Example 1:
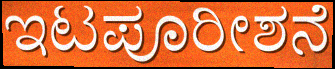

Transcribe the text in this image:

ಇಟಪೂರೀಶನೆ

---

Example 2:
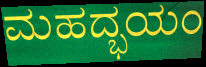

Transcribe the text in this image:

ಮಹದ್ಭಯಂ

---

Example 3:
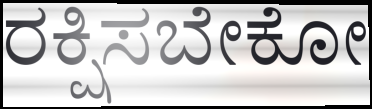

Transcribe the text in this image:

ರಕ್ಷಿಸಬೇಕೋ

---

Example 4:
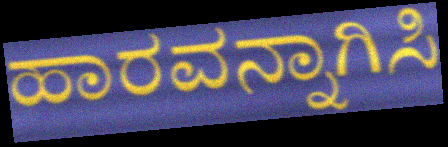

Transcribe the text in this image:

ಹಾರವನ್ನಾಗಿಸಿ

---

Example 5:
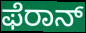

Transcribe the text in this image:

ಫೆರಾನ್